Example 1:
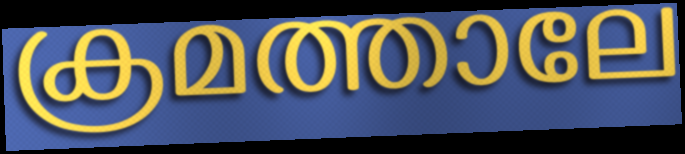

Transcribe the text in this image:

ക്രമത്താലേ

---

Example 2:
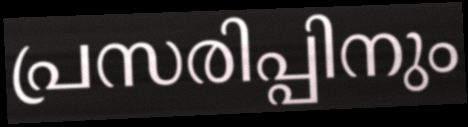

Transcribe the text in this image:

പ്രസരിപ്പിനും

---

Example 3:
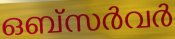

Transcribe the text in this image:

ഒബ്സർവർ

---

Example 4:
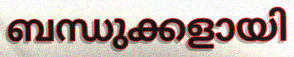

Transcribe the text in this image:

ബന്ധുക്കളായി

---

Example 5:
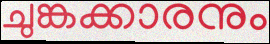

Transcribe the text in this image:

ചുങ്കക്കാരനും